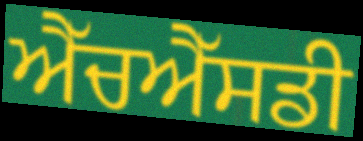
ਐੱਚਐੱਸਡੀ